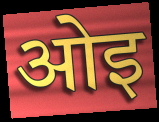
ओइ